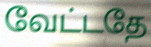
வேட்டதே